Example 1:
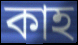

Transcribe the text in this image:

কাহ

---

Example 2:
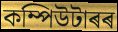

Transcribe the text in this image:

কম্পিউটাৰৰ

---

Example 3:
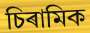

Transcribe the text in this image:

চিৰামিক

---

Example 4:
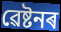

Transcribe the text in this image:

ৱেষ্টনৰ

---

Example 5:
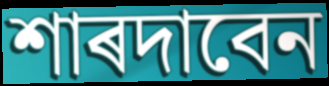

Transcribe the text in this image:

শাৰদাবেন